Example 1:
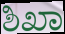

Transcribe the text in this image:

ಶಿಖಾ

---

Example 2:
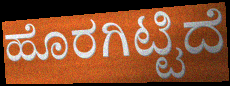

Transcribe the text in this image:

ಹೊರಗಿಟ್ಟಿದೆ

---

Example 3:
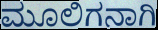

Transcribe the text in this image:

ಮೂಲಿಗನಾಗಿ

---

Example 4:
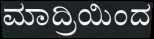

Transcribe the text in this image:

ಮಾದ್ರಿಯಿಂದ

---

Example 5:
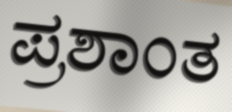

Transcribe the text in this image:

ಪ್ರಶಾಂತ